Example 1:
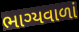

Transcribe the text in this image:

ભાગ્યવાળાં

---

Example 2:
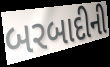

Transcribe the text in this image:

બરબાદીની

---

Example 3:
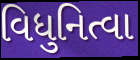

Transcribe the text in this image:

વિધુનિત્વા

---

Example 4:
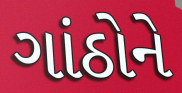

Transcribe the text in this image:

ગાંઠોને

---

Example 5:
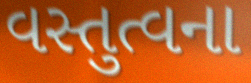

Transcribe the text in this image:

વસ્તુત્વના